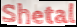
Shetal